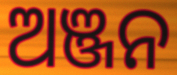
ଅଞ୍ଜନ